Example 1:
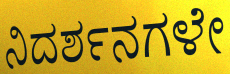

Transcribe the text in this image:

ನಿದರ್ಶನಗಳೇ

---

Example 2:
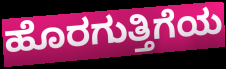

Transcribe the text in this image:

ಹೊರಗುತ್ತಿಗೆಯ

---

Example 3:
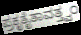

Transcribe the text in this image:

ಪ್ರಕೃತೈತಾವತ್ತ್ವಂ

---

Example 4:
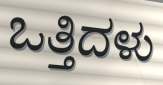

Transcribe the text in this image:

ಒತ್ತಿದಳು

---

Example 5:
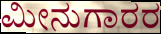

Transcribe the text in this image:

ಮೀನುಗಾರರ